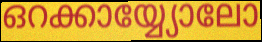
ഒറക്കായ്യ്യോലോ